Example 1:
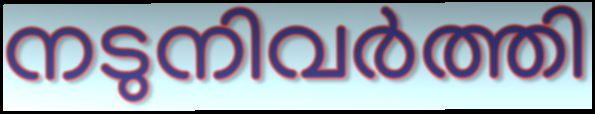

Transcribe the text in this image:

നടുനിവർത്തി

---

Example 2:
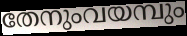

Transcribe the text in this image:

തേനുംവയമ്പും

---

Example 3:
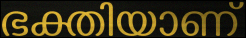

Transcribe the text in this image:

ഭക്തിയാണ്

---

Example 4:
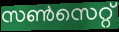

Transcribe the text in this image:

സൺസെറ്റ്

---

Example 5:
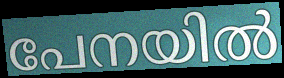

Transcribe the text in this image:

പേനയിൽ